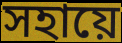
সহায়ে